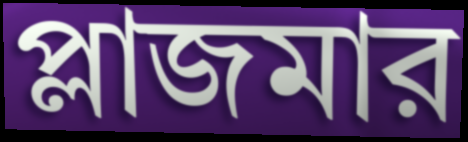
প্লাজমার